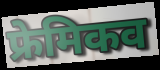
फ्रेमिकव